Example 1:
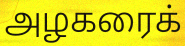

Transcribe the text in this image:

அழகரைக்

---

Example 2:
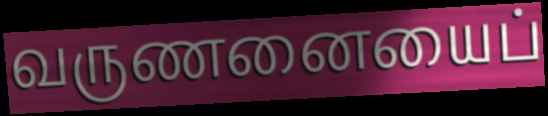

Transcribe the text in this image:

வருணனையைப்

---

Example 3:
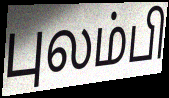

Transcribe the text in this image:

புலம்பி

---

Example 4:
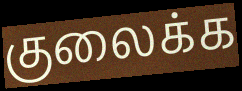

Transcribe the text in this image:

குலைக்க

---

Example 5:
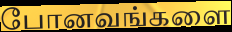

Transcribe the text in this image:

போனவங்களை